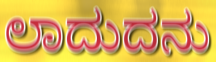
ಲಾದುದನು